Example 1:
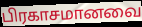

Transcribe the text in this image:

பிரகாசமானவை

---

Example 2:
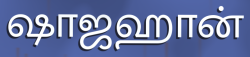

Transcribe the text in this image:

ஷாஜஹான்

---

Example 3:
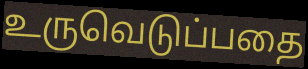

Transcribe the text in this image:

உருவெடுப்பதை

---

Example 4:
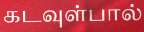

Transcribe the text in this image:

கடவுள்பால்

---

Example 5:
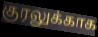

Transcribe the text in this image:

குரலுக்காக